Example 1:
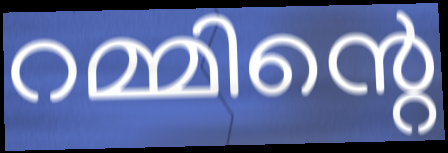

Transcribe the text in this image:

റമ്മിന്റെ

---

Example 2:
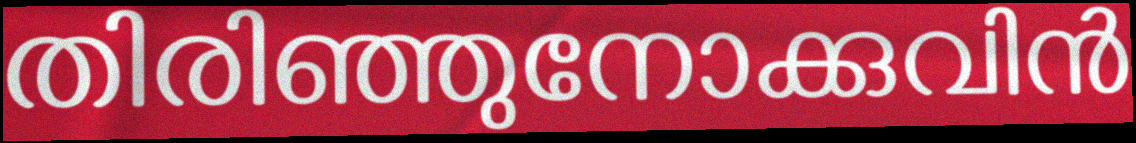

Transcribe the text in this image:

തിരിഞ്ഞുനോക്കുവിൻ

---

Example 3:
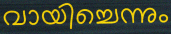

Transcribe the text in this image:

വായിച്ചെന്നും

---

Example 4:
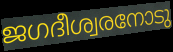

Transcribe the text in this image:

ജഗദീശ്വരനോടു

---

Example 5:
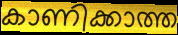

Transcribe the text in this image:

കാണിക്കാത്ത